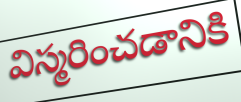
విస్మరించడానికి